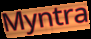
Myntra